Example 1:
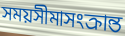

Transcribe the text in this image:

সময়সীমাসংক্রান্ত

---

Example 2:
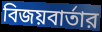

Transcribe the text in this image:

বিজয়বার্তার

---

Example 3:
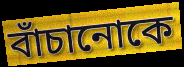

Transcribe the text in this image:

বাঁচানোকে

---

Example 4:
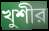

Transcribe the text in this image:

খুশীর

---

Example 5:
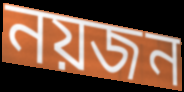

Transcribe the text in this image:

নয়জন